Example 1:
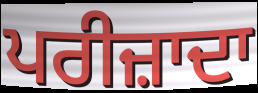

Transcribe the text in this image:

ਪਰੀਜ਼ਾਦਾ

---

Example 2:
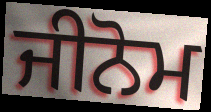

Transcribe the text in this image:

ਜੀਨੋਮ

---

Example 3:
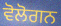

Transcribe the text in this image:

ਵੋਲੋਗਨ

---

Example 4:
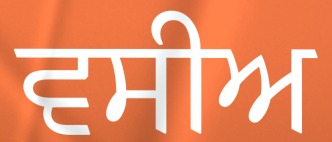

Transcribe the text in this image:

ਵਸੀਅ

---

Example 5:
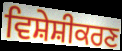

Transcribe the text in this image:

ਵਿਸ਼ੇਸ਼ੀਕਰਣ